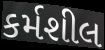
કર્મશીલ